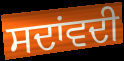
ਸਦਾਂਵਦੀ